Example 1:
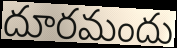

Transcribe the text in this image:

దూరమందు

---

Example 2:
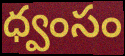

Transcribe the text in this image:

ధ్వంసం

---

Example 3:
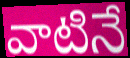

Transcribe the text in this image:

వాటినే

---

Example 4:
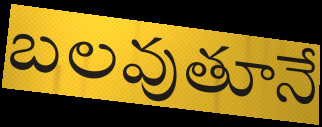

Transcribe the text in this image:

బలవుతూనే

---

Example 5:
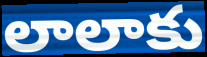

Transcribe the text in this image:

లాలాకు